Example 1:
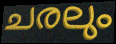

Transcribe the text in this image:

ചരലും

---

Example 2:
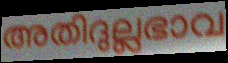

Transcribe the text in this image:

അതിദുല്ലഭാവ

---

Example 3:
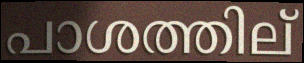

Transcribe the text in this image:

പാശത്തില്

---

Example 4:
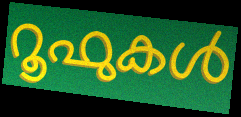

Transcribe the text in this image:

റൂഫുകൾ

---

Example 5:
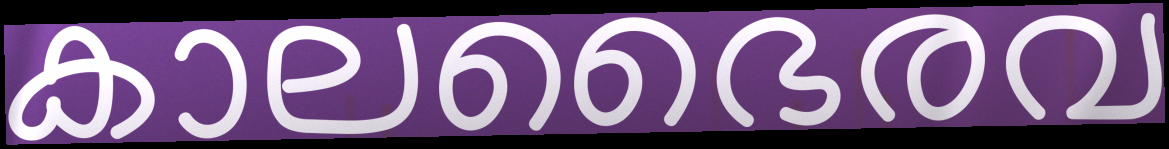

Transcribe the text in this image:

കാലഭൈരവ